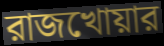
রাজখোয়ার